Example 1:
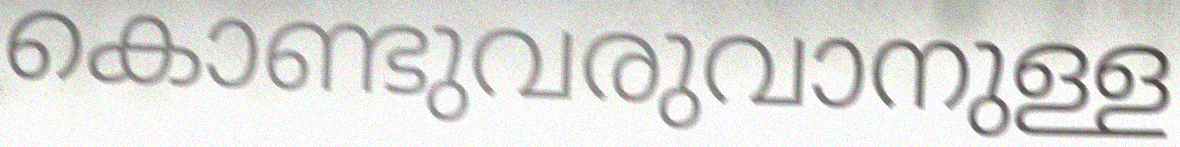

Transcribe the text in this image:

കൊണ്ടുവരുവാനുള്ള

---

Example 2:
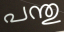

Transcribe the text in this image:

പന്തു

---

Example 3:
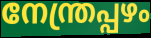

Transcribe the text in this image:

നേന്ത്രപ്പഴം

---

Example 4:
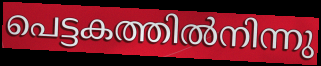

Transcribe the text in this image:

പെട്ടകത്തിൽനിന്നു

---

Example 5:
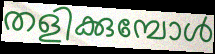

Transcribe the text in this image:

തളിക്കുമ്പോൾ